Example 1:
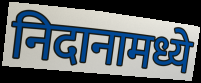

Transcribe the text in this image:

निदानामध्ये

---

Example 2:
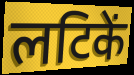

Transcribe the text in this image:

लटिकें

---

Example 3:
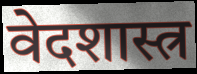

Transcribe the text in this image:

वेदशास्त्र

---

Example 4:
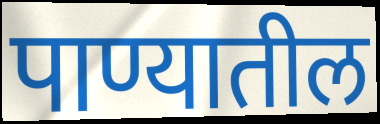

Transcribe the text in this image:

पाण्यातील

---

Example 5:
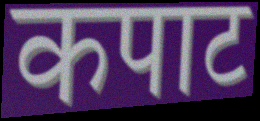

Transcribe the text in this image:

कपाट